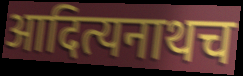
आदित्यनाथच